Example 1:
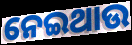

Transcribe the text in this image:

ନେଇଥାଉ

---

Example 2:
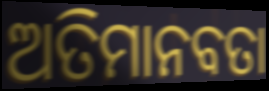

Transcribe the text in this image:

ଅତିମାନବତା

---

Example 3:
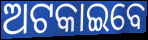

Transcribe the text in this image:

ଅଟକାଇବେ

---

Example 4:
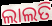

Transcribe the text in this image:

ଲାଲତି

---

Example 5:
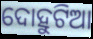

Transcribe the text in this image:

ଦୋହୁଟିଆ